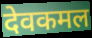
देवकमल